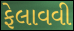
ફેલાવવી